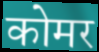
कोमर